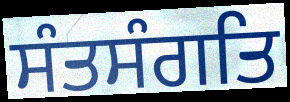
ਸੰਤਸੰਗਤਿ